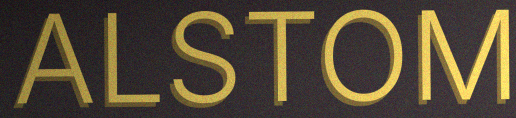
ALSTOM